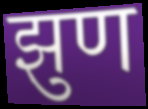
झुण